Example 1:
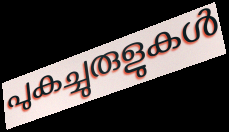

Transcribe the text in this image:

പുകച്ചുരുളുകൾ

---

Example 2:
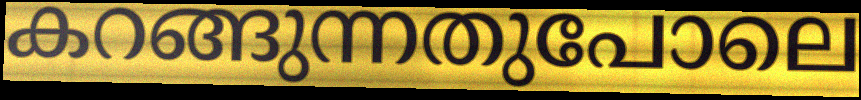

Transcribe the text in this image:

കറങ്ങുന്നതുപോലെ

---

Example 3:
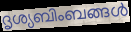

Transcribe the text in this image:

ദൃശ്യബിംബങ്ങൾ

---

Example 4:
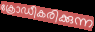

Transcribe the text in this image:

ക്രോഡീകരിക്കുന്ന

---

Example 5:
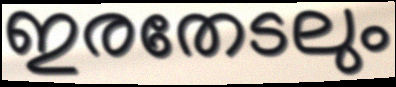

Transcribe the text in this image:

ഇരതേടലും